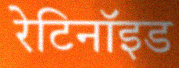
रेटिनॉइड